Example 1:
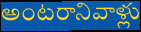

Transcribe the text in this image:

అంటరానివాళ్లు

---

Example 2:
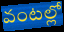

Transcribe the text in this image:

వంటల్లో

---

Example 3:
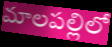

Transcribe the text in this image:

మాలపల్లిలో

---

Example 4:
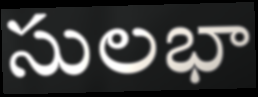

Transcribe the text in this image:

సులభా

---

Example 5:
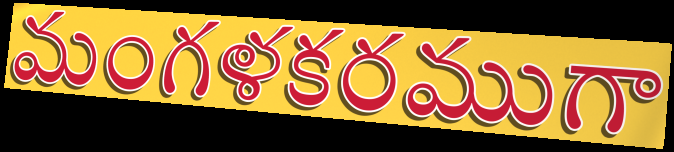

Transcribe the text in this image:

మంగళకరముగా